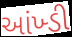
આંખ્ડી